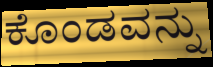
ಕೊಂಡವನ್ನು